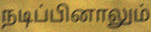
நடிப்பினாலும்